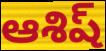
ఆశిష్